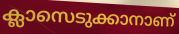
ക്ലാസെടുക്കാനാണ്